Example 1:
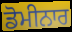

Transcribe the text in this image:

ਡੋਮੀਨਾਰ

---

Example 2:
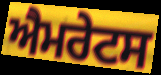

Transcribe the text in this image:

ਐਮਰੇਟਸ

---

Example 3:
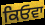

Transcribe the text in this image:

ਕਿਓਵਾ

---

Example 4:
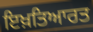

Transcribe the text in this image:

ਇਖ਼ਤਿਆਰਤ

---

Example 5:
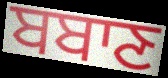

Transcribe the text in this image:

ਬਬਾਣ